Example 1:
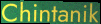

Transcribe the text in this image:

Chintanik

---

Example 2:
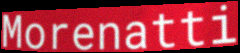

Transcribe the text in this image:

Morenatti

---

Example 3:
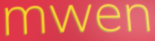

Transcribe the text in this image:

mwen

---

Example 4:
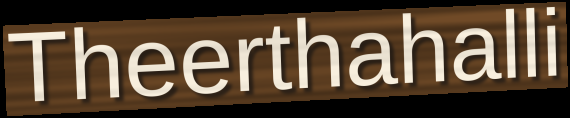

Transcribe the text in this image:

Theerthahalli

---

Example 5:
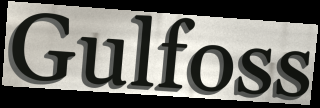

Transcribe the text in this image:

Gulfoss